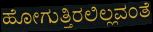
ಹೋಗುತ್ತಿರಲಿಲ್ಲವಂತೆ